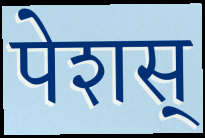
पेशस्